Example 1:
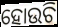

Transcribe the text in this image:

ହୋଉଚି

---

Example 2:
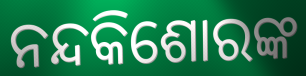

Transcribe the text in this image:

ନନ୍ଦକିଶୋରଙ୍କ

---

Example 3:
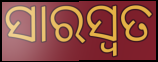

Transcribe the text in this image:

ସାରସ୍ବତ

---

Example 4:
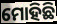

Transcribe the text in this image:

ମୋହିଛି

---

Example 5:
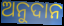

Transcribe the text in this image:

ଅନୁଦାନ